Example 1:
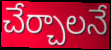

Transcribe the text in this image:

చేర్చాలనే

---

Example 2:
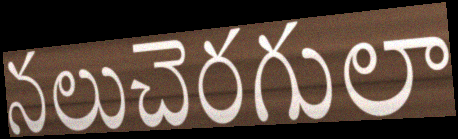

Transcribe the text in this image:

నలుచెరగులా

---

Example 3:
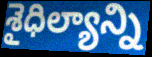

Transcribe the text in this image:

శైధిల్యాన్ని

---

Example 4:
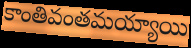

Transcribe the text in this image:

కాంతివంతమయ్యాయి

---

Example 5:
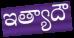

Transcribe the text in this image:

ఇత్యాదౌ